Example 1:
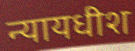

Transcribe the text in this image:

न्यायधीश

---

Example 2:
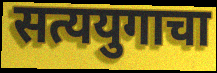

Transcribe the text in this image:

सत्ययुगाचा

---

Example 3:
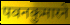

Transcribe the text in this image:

पवनकुमारने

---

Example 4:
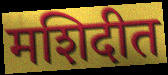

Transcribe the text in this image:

मशिदीत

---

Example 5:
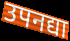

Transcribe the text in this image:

उपनद्या